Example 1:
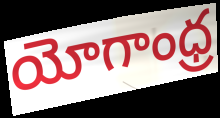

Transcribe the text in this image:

యోగాంధ్ర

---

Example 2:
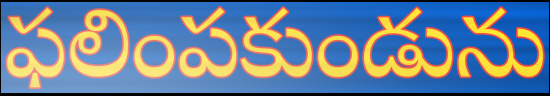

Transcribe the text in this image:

ఫలింపకుండును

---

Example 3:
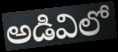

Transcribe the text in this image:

అడివిలో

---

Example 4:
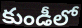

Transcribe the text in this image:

కుండీలో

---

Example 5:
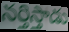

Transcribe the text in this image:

నర్తిస్తాడు